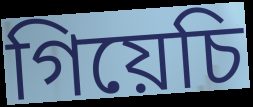
গিয়েচি